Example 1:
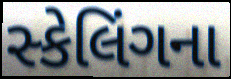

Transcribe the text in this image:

સ્કેલિંગના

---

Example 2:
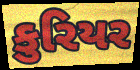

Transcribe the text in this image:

કુરિયર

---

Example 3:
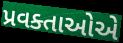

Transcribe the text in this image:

પ્રવક્તાઓએ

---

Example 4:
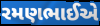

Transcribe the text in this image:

રમણભાઈએ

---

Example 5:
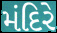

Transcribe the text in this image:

મંદિરે